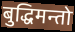
बुद्धिमन्तो